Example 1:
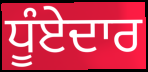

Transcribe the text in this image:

ਧੂੰਏਦਾਰ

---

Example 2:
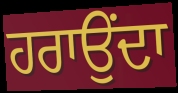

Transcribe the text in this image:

ਹਰਾਉਂਦਾ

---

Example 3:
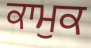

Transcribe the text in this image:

ਕਾਮੁਕ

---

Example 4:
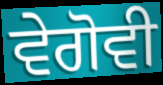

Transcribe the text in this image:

ਵੇਗੋਵੀ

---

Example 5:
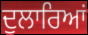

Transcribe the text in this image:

ਦੁਲਾਰਿਆਂ